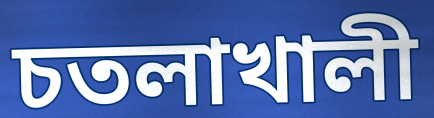
চতলাখালী